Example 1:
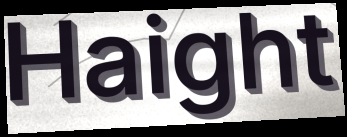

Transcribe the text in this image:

Haight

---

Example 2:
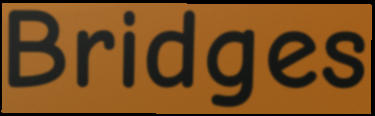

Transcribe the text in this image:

Bridges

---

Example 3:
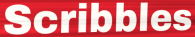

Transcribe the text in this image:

Scribbles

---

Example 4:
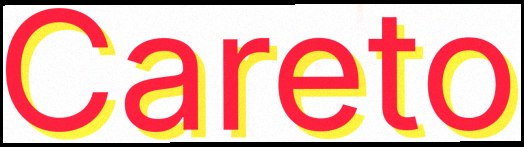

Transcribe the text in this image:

Careto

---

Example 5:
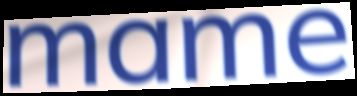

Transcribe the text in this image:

mame